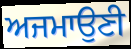
ਅਜਮਾਉਣੀ